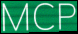
MCP